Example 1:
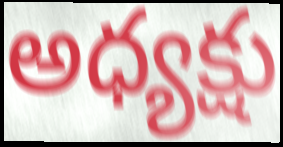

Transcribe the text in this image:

అధ్యక్షు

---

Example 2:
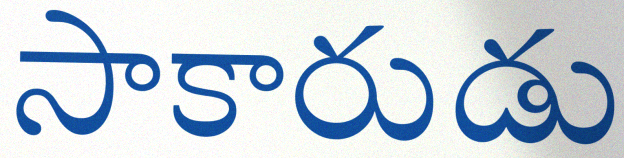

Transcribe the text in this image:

సాకారుడు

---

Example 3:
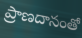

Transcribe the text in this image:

ప్రాణదానంతో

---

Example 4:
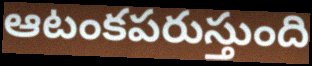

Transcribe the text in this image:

ఆటంకపరుస్తుంది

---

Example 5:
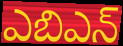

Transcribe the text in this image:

ఎబిఎన్